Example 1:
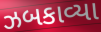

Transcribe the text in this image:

ઝબકાવ્યા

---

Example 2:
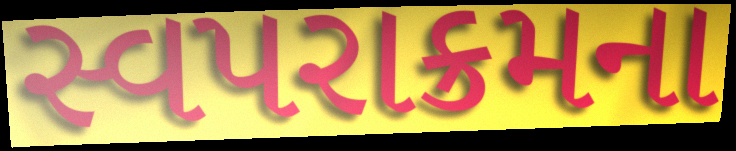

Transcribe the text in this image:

સ્વપરાક્રમના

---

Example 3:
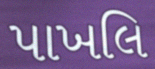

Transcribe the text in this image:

પાખલિ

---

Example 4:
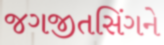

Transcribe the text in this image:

જગજીતસિંગને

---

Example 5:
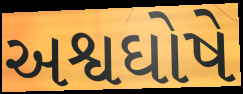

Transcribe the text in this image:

અશ્વઘોષે